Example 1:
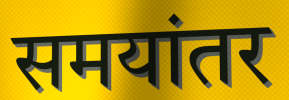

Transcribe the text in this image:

समयांतर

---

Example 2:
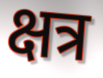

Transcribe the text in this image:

क्षत्र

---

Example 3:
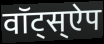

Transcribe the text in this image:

वॉट्स्ऐप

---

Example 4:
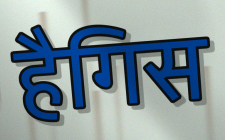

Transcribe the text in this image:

हैगिस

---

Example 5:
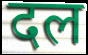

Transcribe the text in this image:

दल